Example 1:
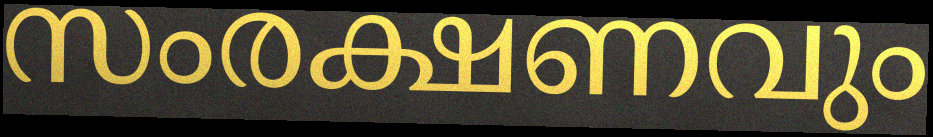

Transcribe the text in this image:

സംരക്ഷണവും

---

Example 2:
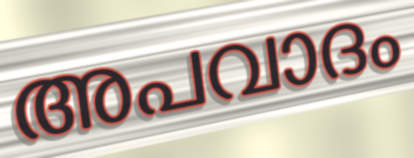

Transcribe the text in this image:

അപവാദം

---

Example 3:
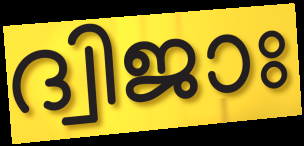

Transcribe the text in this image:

ദ്വിജാഃ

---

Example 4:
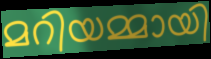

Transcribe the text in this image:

മറിയമ്മായി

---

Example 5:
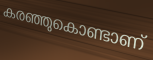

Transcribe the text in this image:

കരഞ്ഞുകൊണ്ടാണ്